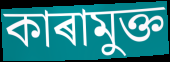
কাৰামুক্ত